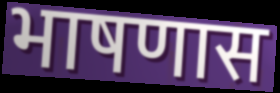
भाषणास